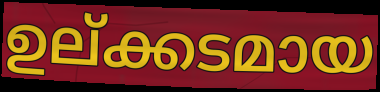
ഉല്ക്കടമായ